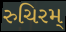
રુચિરમ્